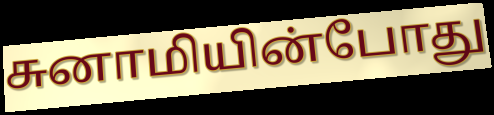
சுனாமியின்போது